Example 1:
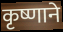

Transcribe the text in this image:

कृष्णाने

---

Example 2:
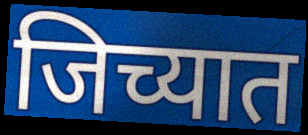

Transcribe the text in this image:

जिच्यात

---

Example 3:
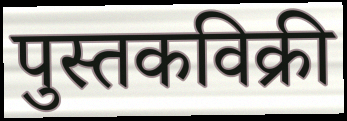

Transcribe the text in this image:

पुस्तकविक्री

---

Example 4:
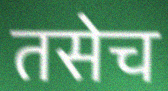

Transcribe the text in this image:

तसेच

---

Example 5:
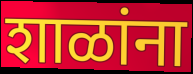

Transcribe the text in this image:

शाळांना